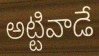
అట్టివాడే